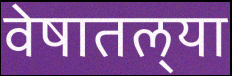
वेषातल्या